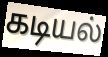
கடியல்